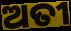
ଅତୀ